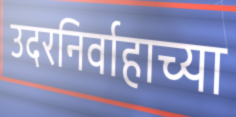
उदरनिर्वाहाच्या